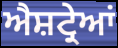
ਐਸ਼ਟ੍ਰੇਆਂ